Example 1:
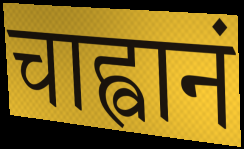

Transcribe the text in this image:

चाह्वानं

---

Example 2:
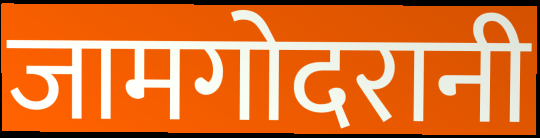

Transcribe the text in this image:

जामगोदरानी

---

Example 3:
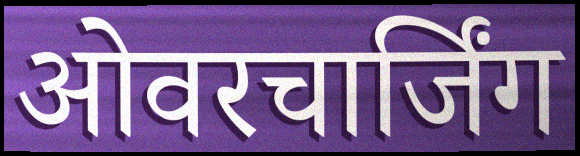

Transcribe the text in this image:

ओवरचार्जिंग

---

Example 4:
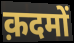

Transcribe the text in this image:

क़दमों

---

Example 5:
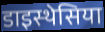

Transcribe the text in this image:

डाइस्थेसिया